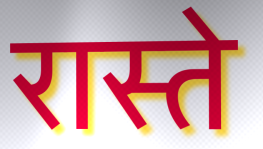
रास्ते